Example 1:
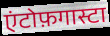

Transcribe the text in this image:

एंटोफ़गास्टा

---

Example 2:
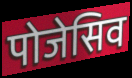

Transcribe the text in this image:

पोजेसिव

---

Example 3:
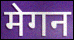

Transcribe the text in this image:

मेगन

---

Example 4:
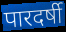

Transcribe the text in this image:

पारदर्षी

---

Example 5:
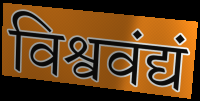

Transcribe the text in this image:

विश्ववंद्यं